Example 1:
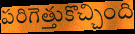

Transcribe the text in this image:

పరిగెత్తుకొచ్చింది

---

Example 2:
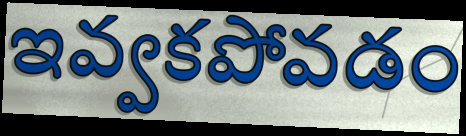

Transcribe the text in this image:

ఇవ్వకపోవడం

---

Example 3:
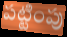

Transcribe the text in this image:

పట్టింపు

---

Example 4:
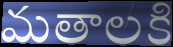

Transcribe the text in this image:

మతాలకి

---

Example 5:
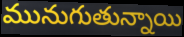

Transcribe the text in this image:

మునుగుతున్నాయి